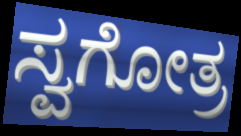
ಸ್ವಗೋತ್ರ